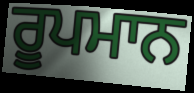
ਰੂਪਮਾਨ